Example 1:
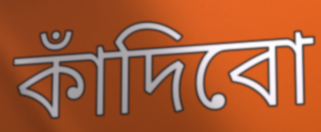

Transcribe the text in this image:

কাঁদিবো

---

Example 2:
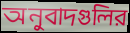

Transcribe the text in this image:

অনুবাদগুলির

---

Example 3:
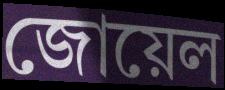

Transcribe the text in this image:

জোয়েল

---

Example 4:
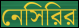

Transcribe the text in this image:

নেসিরির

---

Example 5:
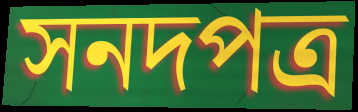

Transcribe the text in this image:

সনদপত্র